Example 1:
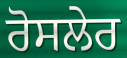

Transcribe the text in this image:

ਰੋਸਲੇਰ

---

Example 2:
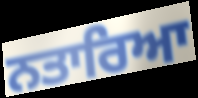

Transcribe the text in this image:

ਨਤਾਰਿਆ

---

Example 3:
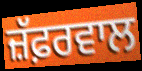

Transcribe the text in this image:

ਜ਼ੱਫ਼ਰਵਾਲ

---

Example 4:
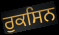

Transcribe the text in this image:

ਰੁਕਸਿਨ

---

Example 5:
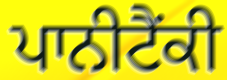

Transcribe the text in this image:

ਪਾਨੀਟੈਂਕੀ